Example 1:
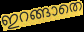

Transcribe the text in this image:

ഇറങ്ങാതെ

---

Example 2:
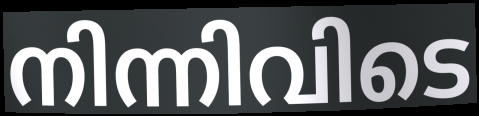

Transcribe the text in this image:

നിന്നിവിടെ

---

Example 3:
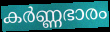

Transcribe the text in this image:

കർണ്ണഭാരം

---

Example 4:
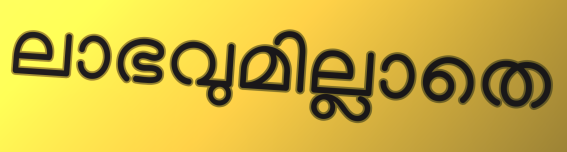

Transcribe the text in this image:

ലാഭവുമില്ലാതെ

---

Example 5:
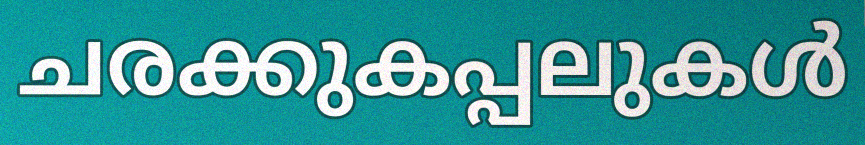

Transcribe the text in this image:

ചരക്കുകപ്പലുകൾ